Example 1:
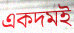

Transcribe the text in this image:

একদমই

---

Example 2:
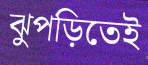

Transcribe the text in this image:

ঝুপড়িতেই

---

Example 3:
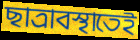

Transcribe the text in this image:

ছাত্রাবস্থাতেই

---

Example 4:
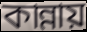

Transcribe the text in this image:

কান্নায়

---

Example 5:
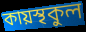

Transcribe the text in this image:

কায়স্থকুল